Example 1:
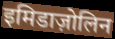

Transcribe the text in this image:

इमिडाज़ोलिन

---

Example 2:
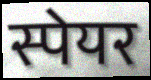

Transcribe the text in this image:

स्पेयर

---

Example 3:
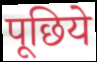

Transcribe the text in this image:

पूछिये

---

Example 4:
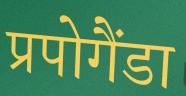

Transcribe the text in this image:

प्रपोगैंडा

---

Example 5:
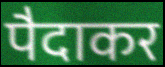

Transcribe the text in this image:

पैदाकर